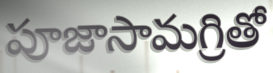
పూజాసామగ్రితో